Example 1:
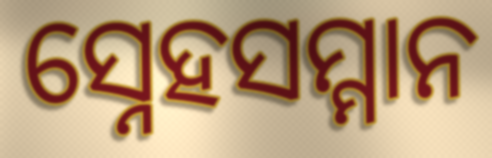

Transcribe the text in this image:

ସ୍ନେହସମ୍ମାନ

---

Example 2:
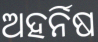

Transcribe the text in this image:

ଅହର୍ନିଷ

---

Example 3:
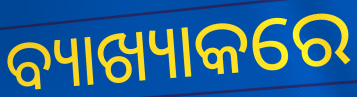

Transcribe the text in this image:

ବ୍ୟାଖ୍ୟାକରେ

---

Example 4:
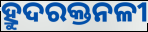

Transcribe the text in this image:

ହ୍ରୁଦରକ୍ତନଳୀ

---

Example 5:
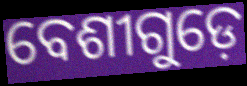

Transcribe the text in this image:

ବେଶୀଗୁଡ଼େ